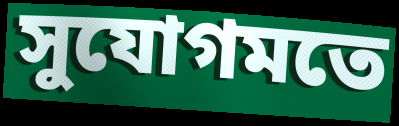
সুযোগমতে